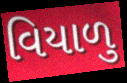
વિયાળુ